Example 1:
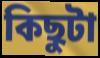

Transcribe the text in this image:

কিছুটা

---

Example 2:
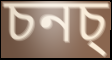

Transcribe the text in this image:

চনচ্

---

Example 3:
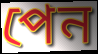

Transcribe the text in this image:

পেন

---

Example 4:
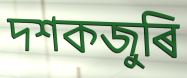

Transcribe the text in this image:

দশকজুৰি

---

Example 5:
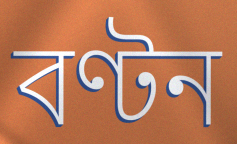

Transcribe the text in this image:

বণ্টন